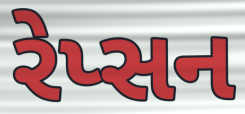
રેપ્સન